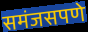
समंजसपणे